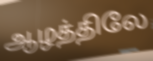
ஆழத்திலே